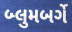
બ્લુમબર્ગે